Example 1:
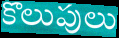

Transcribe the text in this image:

కొలుపులు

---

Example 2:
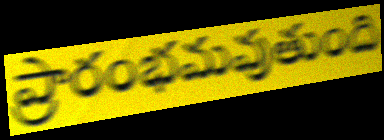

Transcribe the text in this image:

ప్రారంభమవుతుంది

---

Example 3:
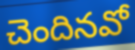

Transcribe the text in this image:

చెందినవో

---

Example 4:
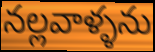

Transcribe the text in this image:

నల్లవాళ్ళను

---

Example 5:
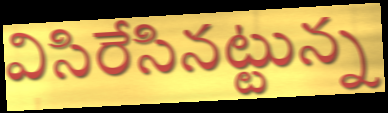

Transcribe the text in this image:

విసిరేసినట్టున్న